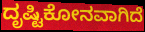
ದೃಷ್ಟಿಕೋನವಾಗಿದೆ